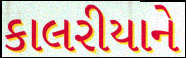
કાલરીયાને